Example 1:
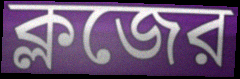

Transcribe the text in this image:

ক্লজের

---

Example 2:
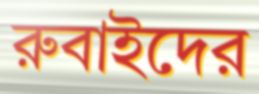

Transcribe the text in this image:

রুবাইদের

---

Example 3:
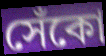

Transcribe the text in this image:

সেঁকো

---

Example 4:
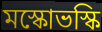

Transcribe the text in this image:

মস্কোভস্কি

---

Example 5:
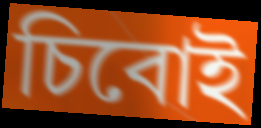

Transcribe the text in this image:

চিবোই